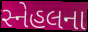
સ્નેહલના